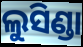
ଲୁସିଣ୍ଡା